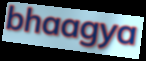
bhaagya